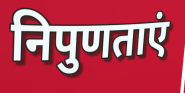
निपुणताएं